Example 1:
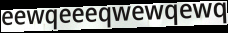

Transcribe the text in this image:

eewqeeeqwewqewq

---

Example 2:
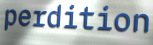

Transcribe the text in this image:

perdition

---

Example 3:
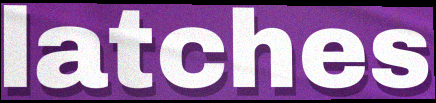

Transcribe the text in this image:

latches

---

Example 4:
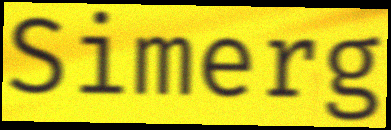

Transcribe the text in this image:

Simerg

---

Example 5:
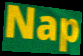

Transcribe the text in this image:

Nap